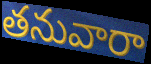
తనువారా